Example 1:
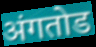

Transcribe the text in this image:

अंगतोड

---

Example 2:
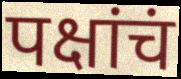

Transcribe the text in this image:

पक्षांचं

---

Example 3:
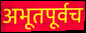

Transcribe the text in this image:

अभूतपूर्वच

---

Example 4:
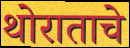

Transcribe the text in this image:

थोराताचे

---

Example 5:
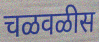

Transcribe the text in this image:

चळवळीस